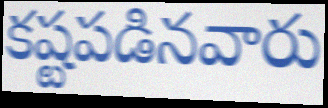
కష్టపడినవారు